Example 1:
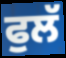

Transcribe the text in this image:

ਫੁਲੱ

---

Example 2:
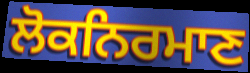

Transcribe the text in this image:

ਲੋਕਨਿਰਮਾਣ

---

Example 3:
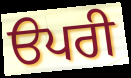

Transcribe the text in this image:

ੳਪਰੀ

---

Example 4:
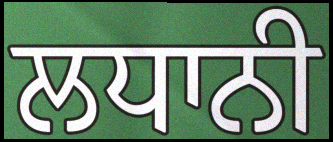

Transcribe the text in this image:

ਲਧਾਨੀ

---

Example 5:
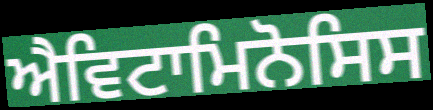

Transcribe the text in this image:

ਐਵਿਟਾਮਿਨੋਸਿਸ